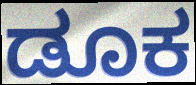
ಡೂಕ